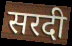
सरदी